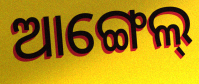
ଆଙ୍ଗେଲ୍